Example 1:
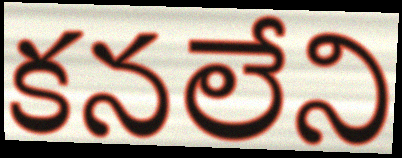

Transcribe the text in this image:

కనలేని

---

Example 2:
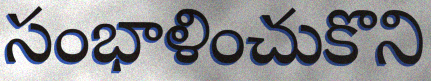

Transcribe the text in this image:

సంభాళించుకొని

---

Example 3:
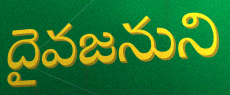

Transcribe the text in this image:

దైవజనుని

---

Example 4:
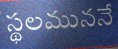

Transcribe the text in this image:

స్థలముననే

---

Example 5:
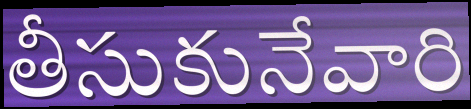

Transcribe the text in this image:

తీసుకునేవారి